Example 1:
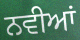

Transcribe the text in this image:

ਨਵੀਆਂ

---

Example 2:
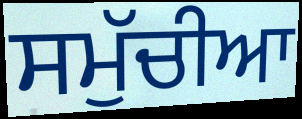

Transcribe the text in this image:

ਸਮੁੱਚੀਆ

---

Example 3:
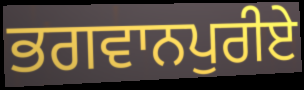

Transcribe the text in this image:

ਭਗਵਾਨਪੁਰੀਏ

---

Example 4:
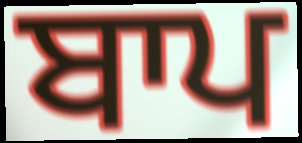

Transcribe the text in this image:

ਬਾਪ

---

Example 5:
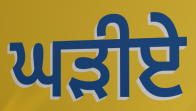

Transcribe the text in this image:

ਘੜੀਏ